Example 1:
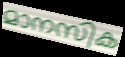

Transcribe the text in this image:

മാനസിക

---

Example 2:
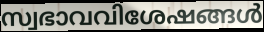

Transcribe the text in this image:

സ്വഭാവവിശേഷങ്ങൾ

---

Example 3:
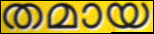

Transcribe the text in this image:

തമായ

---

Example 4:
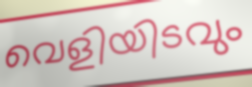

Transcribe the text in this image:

വെളിയിടവും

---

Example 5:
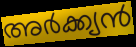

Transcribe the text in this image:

അർക്ക്യൻ